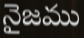
నైజము